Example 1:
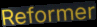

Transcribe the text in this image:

Reformer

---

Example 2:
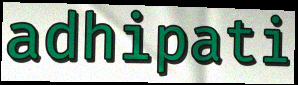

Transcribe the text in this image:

adhipati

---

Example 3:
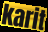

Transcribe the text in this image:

karit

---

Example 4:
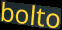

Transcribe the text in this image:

bolto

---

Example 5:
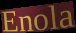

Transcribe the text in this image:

Enola